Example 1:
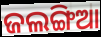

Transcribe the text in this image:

ଜଲଙ୍ଗିଆ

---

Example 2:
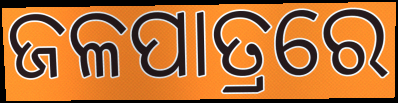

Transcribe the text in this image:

ଜଳପାତ୍ରରେ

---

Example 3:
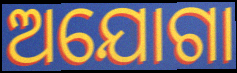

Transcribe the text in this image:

ଅଯୋଗା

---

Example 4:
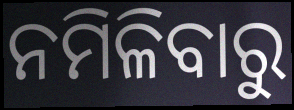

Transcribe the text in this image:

ନମିଳିବାରୁ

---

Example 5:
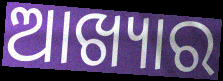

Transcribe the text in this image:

ଆଖ୍ୟାର